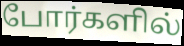
போர்களில்